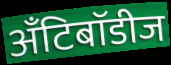
अँटिबॉडीज